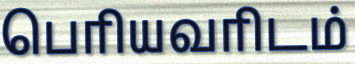
பெரியவரிடம்